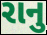
રાનુ